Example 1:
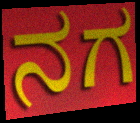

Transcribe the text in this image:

ನಗ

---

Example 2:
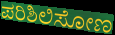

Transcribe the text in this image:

ಪರಿಶಿಲಿಸೋಣ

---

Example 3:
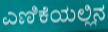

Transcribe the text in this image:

ಎಣಿಕೆಯಲ್ಲಿನ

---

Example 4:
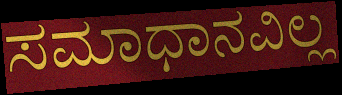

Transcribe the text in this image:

ಸಮಾಧಾನವಿಲ್ಲ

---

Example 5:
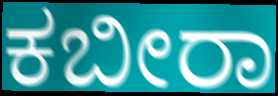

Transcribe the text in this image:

ಕಬೀರಾ